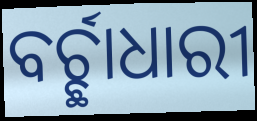
ବର୍ଚ୍ଛାଧାରୀ